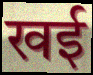
खई